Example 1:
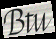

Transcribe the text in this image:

Btu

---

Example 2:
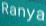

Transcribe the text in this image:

Ranya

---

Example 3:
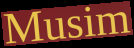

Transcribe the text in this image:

Musim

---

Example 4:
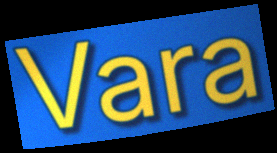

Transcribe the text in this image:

Vara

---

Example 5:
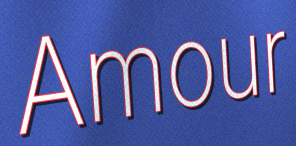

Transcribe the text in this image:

Amour